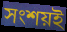
সংশয়ই